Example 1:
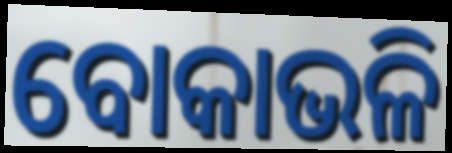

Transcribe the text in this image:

ବୋକାଭଳି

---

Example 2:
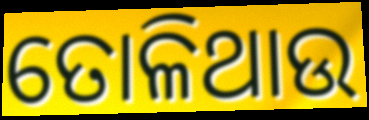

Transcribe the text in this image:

ତୋଳିଥାଉ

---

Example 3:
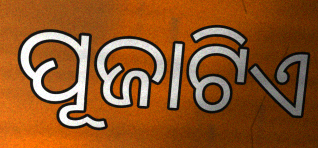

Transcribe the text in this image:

ପୂଜାଟିଏ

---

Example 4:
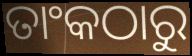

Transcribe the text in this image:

ତାଂକଠାରୁ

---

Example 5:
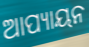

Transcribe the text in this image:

ଆପ୍ୟାୟନ